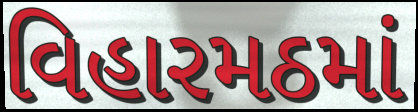
વિહારમઠમાં